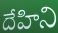
దేహిని